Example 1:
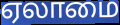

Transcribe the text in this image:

ஏலாமை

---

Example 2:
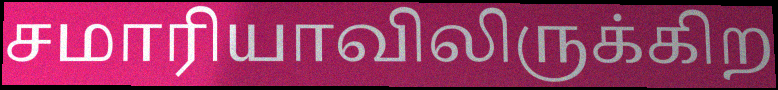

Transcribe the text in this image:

சமாரியாவிலிருக்கிற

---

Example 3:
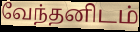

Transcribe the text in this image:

வேந்தனிடம்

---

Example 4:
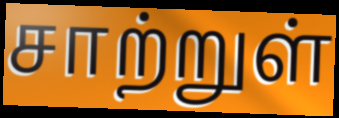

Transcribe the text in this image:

சாற்றுள்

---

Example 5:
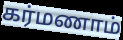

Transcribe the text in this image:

கர்மணாம்